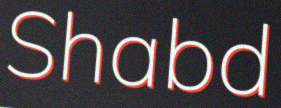
Shabd